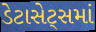
ડેટાસેટ્સમાં